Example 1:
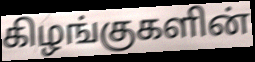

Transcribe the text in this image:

கிழங்குகளின்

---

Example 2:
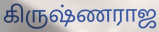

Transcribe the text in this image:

கிருஷ்ணராஜ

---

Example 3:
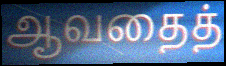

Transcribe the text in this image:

ஆவதைத்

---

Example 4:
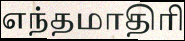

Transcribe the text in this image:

எந்தமாதிரி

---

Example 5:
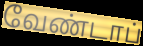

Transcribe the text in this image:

வேண்டாப்